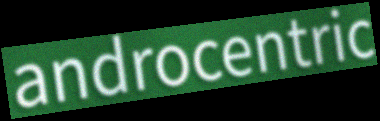
androcentric